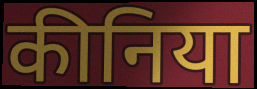
कीनिया